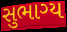
સુભાગ્ય